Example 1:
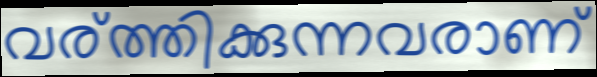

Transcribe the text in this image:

വര്ത്തിക്കുന്നവരാണ്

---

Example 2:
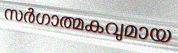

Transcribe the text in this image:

സർഗാത്മകവുമായ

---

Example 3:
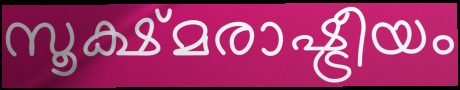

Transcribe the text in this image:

സൂക്ഷ്മരാഷ്ട്രീയം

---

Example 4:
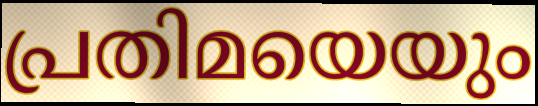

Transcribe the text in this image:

പ്രതിമയെയും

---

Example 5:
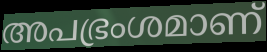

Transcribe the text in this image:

അപഭ്രംശമാണ്